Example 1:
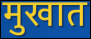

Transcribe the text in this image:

मुखात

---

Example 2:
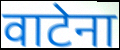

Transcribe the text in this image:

वाटेना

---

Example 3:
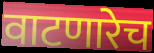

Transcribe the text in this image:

वाटणारेच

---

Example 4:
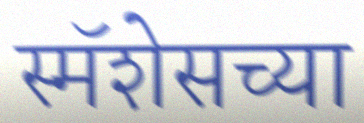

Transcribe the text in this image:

स्मॅशेसच्या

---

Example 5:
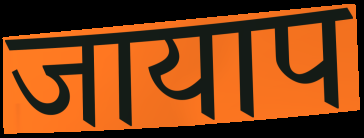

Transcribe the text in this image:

जायाप